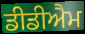
ਡੀਡੀਐਮ